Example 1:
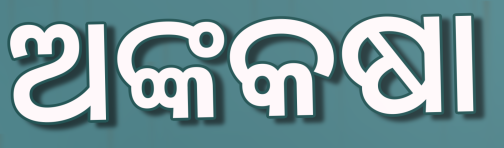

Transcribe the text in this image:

ଅଙ୍କକଷା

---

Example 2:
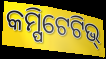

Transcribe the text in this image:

କମ୍ପିଟେଟିଭ୍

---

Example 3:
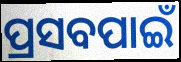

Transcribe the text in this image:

ପ୍ରସବପାଇଁ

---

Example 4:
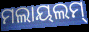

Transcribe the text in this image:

ମଲାୟଲମ୍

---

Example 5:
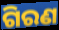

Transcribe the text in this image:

ଗିରଣ